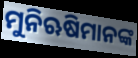
ମୁନିଋଷିମାନଙ୍କ